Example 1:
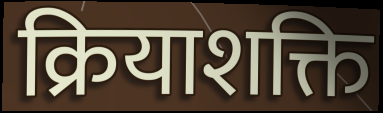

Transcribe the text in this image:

क्रियाशक्ति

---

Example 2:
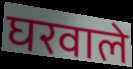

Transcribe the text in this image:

घरवाले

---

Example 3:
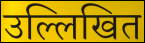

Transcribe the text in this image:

उल्लिखित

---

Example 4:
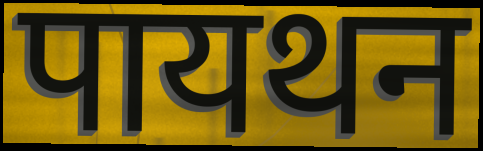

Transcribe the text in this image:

पायथन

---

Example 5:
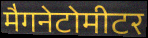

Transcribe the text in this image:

मैगनेटोमीटर